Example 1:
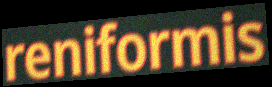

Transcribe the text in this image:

reniformis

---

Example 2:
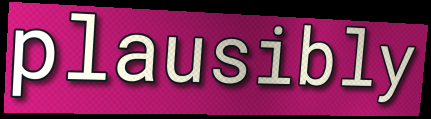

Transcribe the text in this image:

plausibly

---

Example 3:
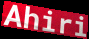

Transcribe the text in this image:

Ahiri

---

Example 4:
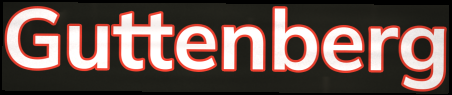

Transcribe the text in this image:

Guttenberg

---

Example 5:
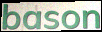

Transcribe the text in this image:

bason